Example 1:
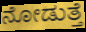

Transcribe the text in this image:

ನೋಡುತ್ತೆ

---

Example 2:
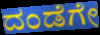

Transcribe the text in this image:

ದಂಡೆಗೇ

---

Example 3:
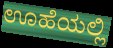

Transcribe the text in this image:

ಊಹೆಯಲ್ಲಿ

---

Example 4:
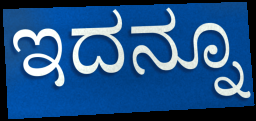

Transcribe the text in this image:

ಇದನ್ನೂ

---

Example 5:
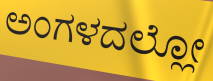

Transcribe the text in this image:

ಅಂಗಳದಲ್ಲೋ